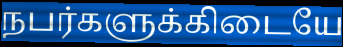
நபர்களுக்கிடையே